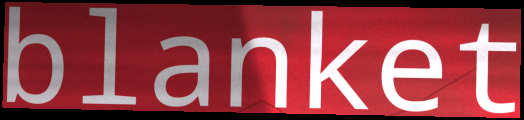
blanket